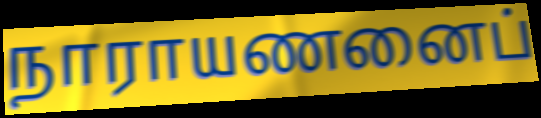
நாராயணனைப்